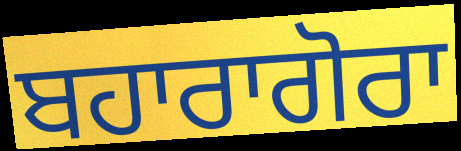
ਬਹਾਰਾਗੋਰਾ